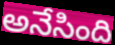
అనేసింది